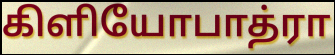
கிளியோபாத்ரா